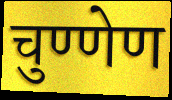
चुण्णेण